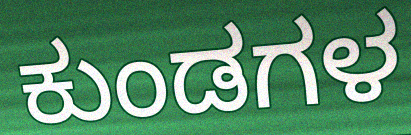
ಕುಂಡಗಳ